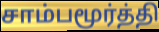
சாம்பமூர்த்தி